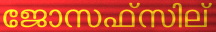
ജോസഫ്സില്